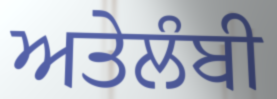
ਅਤੇਲੰਬੀ